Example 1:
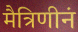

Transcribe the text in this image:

मैत्रिणीनं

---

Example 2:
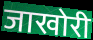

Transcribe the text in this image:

जाखोरी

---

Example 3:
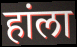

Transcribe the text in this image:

हांला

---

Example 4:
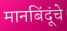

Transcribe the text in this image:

मानबिंदूंचे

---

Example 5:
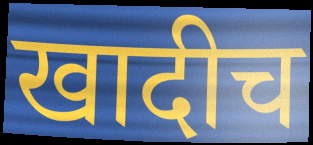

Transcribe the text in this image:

खादीच